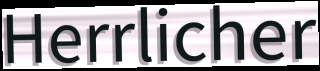
Herrlicher